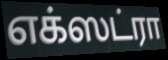
எக்ஸட்ரா